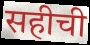
सहीची